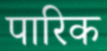
पारिक